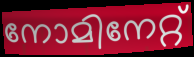
നോമിനേറ്റ്